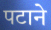
पटाने